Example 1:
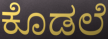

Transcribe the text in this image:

ಕೊಡಲೆ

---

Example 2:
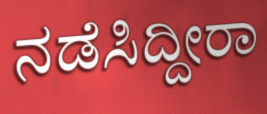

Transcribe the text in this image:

ನಡೆಸಿದ್ದೀರಾ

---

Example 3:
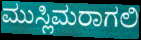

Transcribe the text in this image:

ಮುಸ್ಲಿಮರಾಗಲಿ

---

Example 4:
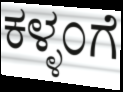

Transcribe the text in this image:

ಕಳ್ಳಂಗೆ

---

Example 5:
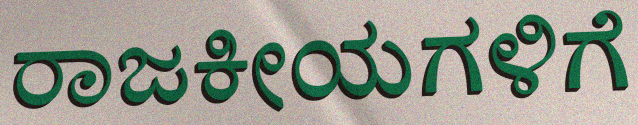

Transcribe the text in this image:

ರಾಜಕೀಯಗಳಿಗೆ